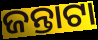
ଜନ୍ତାଟା